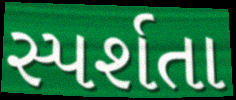
સ્પર્શતા